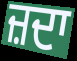
ਜ਼ਦਾ